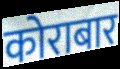
कोराबार